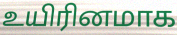
உயிரினமாக